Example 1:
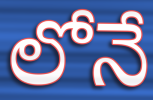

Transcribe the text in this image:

లోనే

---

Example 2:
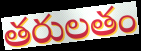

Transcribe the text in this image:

తరులతం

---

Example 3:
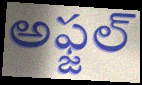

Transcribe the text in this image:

అఫ్జల్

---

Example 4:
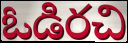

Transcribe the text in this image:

ఓడిరచి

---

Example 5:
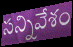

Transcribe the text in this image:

సన్నివేశం